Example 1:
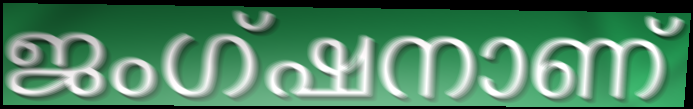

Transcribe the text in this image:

ജംഗ്ഷനാണ്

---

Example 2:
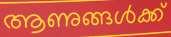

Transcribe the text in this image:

ആണുങ്ങൾക്ക്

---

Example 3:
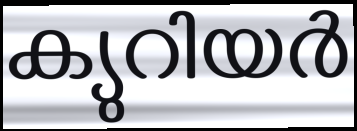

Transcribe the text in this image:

ക്യുറിയർ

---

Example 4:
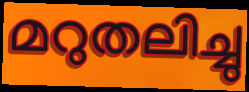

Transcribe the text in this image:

മറുതലിച്ചു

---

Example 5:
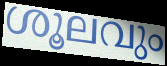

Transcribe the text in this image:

ശൂലവും